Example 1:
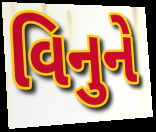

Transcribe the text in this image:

વિનુને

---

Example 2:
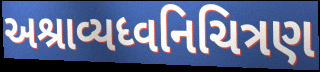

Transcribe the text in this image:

અશ્રાવ્યધ્વનિચિત્રણ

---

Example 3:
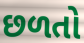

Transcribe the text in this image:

છળતો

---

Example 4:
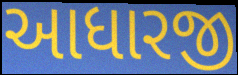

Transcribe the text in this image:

આધારજી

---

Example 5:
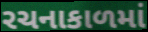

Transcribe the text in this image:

રચનાકાળમાં